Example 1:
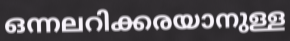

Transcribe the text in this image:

ഒന്നലറിക്കരയാനുള്ള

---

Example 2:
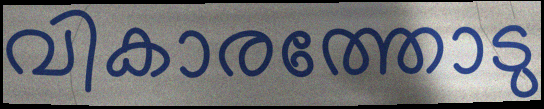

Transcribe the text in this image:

വികാരത്തോടു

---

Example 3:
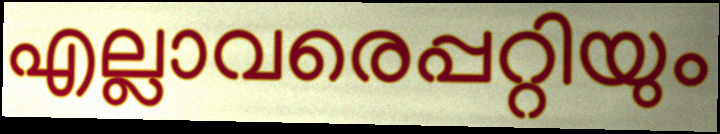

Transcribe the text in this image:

എല്ലാവരെപ്പറ്റിയും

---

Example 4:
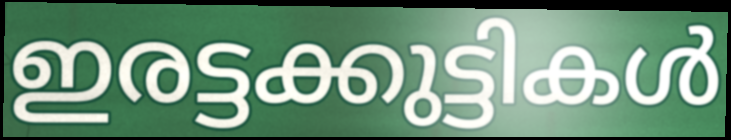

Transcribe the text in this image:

ഇരട്ടക്കുട്ടികൾ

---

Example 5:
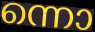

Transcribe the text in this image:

ന്നൊ